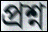
প্রশ্ন